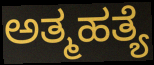
ಅತ್ಮಹತ್ಯೆ